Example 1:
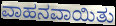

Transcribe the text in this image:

ವಾಹನವಾಯಿತು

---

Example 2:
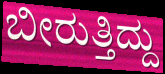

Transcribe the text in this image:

ಬೀರುತ್ತಿದ್ದು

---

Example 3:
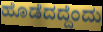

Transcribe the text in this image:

ಹೊಡೆದದ್ದೆಂದು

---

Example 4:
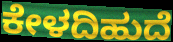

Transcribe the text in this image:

ಕೇಳದಿಹುದೆ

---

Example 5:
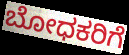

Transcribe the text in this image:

ಬೋಧಕರಿಗೆ